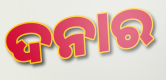
ଦନାର